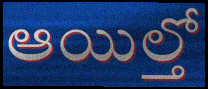
ఆయిల్తో